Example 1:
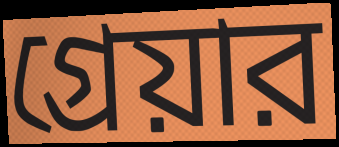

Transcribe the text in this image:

গ্রেয়ার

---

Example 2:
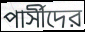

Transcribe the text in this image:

পার্সীদের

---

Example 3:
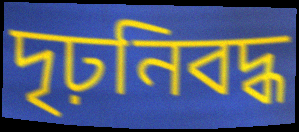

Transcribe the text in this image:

দৃঢ়নিবদ্ধ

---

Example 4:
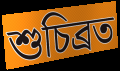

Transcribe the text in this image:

শুচিব্রত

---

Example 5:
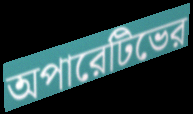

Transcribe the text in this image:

অপারেটিভের